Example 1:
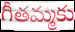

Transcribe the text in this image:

గీతమ్మకు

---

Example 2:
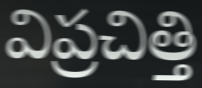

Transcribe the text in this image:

విప్రచిత్తి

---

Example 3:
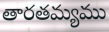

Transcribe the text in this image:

తారతమ్యము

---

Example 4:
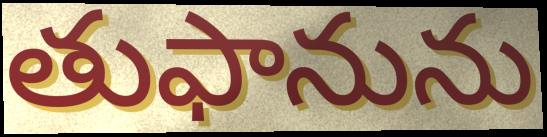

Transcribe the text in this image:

తుఫానును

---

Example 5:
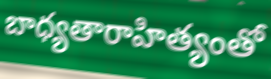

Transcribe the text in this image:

బాధ్యతారాహిత్యంతో